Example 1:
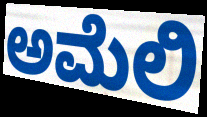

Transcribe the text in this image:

ಅಮೆಲಿ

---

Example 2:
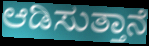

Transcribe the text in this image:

ಆಡಿಸುತ್ತಾನೆ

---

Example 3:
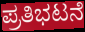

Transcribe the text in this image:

ಪ್ರತಿಭಟನೆ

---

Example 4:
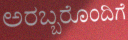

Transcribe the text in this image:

ಅರಬ್ಬರೊಂದಿಗೆ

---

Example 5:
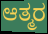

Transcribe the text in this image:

ಆತ್ಮರ